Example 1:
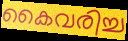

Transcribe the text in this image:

കൈവരിച്ച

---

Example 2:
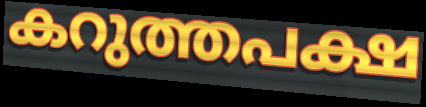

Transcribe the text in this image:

കറുത്തപക്ഷ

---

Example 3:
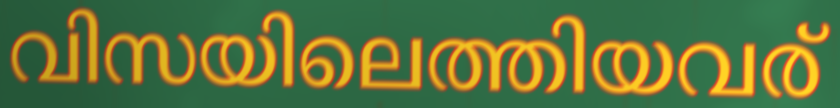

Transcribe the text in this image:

വിസയിലെത്തിയവര്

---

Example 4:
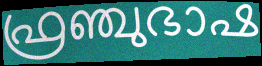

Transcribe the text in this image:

ഫ്രഞ്ചുഭാഷ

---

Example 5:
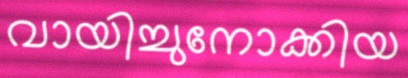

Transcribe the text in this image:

വായിച്ചുനോക്കിയ